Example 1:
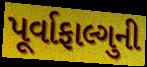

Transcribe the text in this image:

પૂર્વાફાલ્ગુની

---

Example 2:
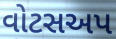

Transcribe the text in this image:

વોટસઅપ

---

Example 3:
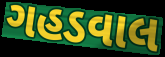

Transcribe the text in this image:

ગહડવાલ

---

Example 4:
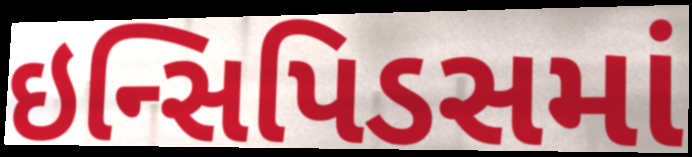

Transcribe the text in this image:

ઇન્સિપિડસમાં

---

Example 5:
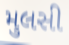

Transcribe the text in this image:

મુલસી